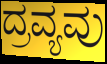
ದ್ರವ್ಯವು